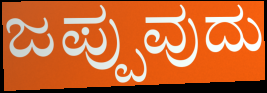
ಜಪ್ಪುವುದು